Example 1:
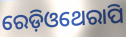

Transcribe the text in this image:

ରେଡ଼ିଓଥେରାପି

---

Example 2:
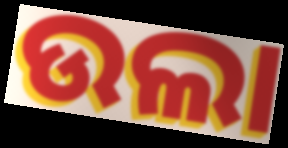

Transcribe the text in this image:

ଉଲା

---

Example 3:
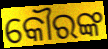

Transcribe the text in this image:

କୌରଙ୍କ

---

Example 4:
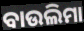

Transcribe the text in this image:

ବାଉଲିମା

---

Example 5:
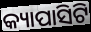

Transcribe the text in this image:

କ୍ୟାପାସିଟି